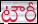
టౌరీ